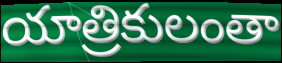
యాత్రికులంతా